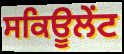
ਸਕਿਊਲੇਂਟ